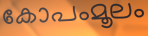
കോപംമൂലം